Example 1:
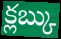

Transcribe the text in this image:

క్లబ్కు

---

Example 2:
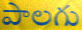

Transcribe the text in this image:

పాలగు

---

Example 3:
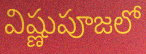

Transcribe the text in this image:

విష్ణుపూజలో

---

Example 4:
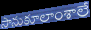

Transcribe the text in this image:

సానుకూలాంశాలే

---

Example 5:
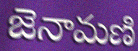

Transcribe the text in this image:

జెనామణి